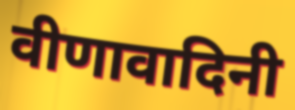
वीणावादिनी